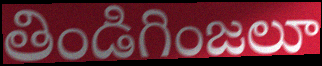
తిండిగింజలూ